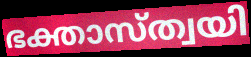
ഭക്താസ്ത്വയി